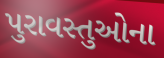
પુરાવસ્તુઓના